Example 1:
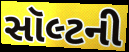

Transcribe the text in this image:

સૉલ્ટની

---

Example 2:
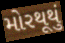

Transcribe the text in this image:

મોરથૂથું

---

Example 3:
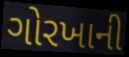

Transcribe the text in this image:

ગોરખાની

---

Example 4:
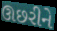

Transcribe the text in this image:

ઊછરીને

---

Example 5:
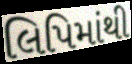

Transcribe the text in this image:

લિપિમાંથી